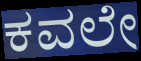
ಕವಲೇ